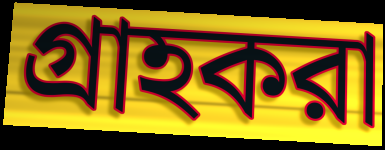
গ্রাহকরা